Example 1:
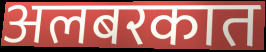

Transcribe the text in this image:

अलबरकात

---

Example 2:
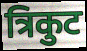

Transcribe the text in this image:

त्रिकुट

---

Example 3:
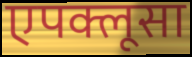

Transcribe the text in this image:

एपक्लूसा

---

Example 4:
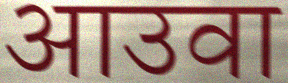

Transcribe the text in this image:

आउवा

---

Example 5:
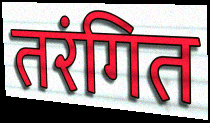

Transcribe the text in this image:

तरंगित